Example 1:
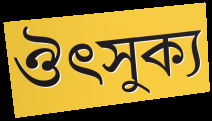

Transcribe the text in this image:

ঔৎসুক্য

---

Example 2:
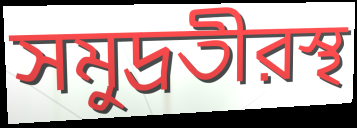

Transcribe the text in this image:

সমুদ্রতীরস্থ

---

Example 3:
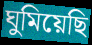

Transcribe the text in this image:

ঘুমিয়েছি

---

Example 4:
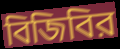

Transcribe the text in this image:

বিজিবির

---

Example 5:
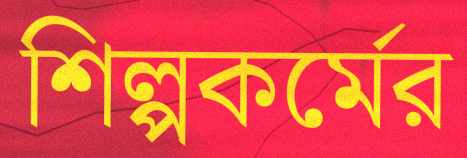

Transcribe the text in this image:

শিল্পকর্মের